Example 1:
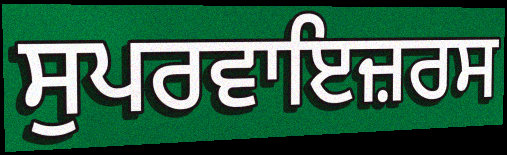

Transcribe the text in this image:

ਸੁਪਰਵਾਇਜ਼ਰਸ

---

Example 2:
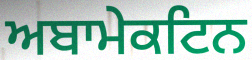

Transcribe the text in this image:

ਅਬਾਮੇਕਟਿਨ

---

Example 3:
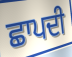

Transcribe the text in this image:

ਛਾਪਦੀ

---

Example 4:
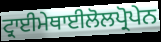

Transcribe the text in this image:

ਟ੍ਰਾਈਮੇਥਾਈਲੋਲਪ੍ਰੋਪੇਨ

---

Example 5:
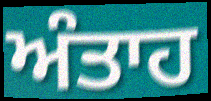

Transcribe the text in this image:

ਅੰਤਾਹ